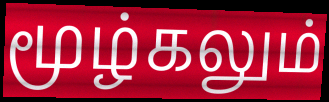
மூழ்கலும்